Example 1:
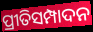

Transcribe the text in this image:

ପ୍ରୀତିସମ୍ପାଦନ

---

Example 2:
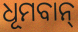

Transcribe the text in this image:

ଧୂମବାନ୍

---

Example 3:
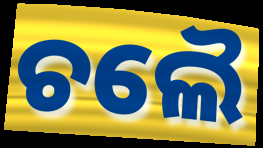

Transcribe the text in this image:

ଚଲୈ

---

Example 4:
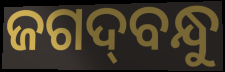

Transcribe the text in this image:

ଜଗଦ୍‌ବନ୍ଧୁ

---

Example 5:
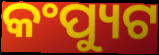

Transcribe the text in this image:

କଂପ୍ୟୁଟ